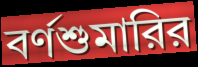
বর্ণশুমারির